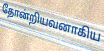
தோன்றியவனாகிய